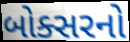
બોક્સરનો